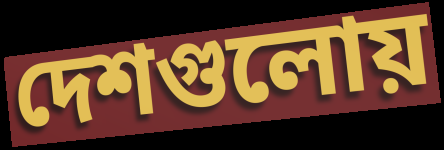
দেশগুলোয়